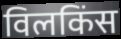
विलकिंस